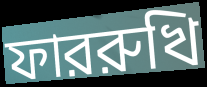
ফাররুখি